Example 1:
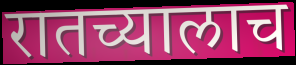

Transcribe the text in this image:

रातच्यालाच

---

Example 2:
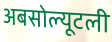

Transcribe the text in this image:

अबसोल्यूटली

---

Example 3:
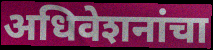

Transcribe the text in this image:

अधिवेशनांचा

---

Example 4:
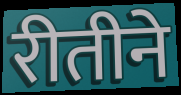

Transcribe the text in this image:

रीतीने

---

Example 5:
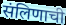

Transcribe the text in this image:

संलिणाची